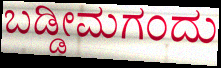
ಬಡ್ಡೀಮಗಂದು